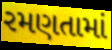
રમણતામાં